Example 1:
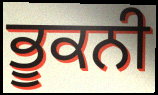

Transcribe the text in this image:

ਭੂਕਨੀ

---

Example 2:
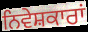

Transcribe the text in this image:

ਨਿਵੇਸ਼ਕਾਰਾਂ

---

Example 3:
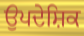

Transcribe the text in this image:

ਉਪਦੇਸ਼ਿਕ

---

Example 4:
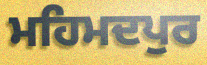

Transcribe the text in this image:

ਮਹਿਮਦਪੁਰ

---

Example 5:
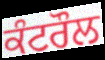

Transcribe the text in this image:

ਕੰਟਰੌਲ